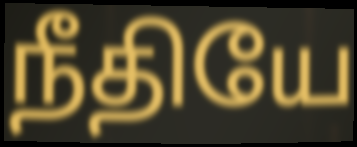
நீதியே